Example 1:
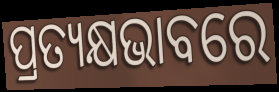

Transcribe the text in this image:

ପ୍ରତ୍ୟକ୍ଷଭାବରେ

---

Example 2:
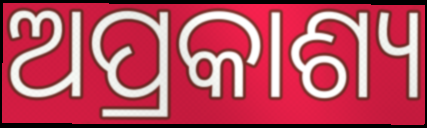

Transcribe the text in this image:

ଅପ୍ରକାଶ୍ୟ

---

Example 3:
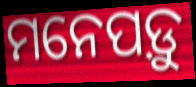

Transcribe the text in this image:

ମନେପଡ଼ୁ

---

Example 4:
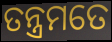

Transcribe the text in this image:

ତନ୍ତ୍ରମତେ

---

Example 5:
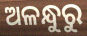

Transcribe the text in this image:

ଅଳନ୍ଧୁରୁ